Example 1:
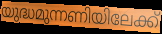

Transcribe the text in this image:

യുദ്ധമുന്നണിയിലേക്ക്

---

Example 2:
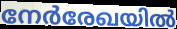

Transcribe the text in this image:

നേർരേഖയിൽ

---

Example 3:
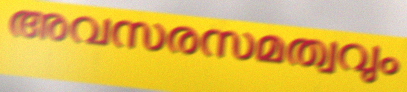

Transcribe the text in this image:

അവസരസമത്വവും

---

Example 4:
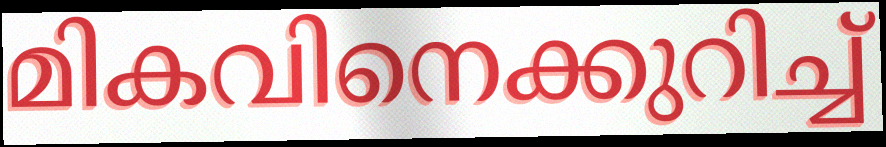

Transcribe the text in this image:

മികവിനെക്കുറിച്ച്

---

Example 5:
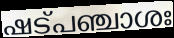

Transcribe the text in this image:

ഷട്പഞ്ചാശഃ